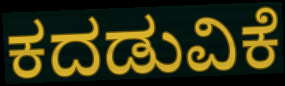
ಕದಡುವಿಕೆ